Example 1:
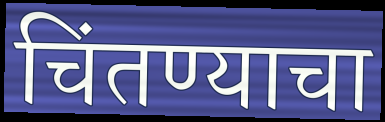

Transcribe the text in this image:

चिंतण्याचा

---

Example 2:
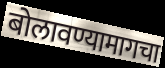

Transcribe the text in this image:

बोलावण्यामागचा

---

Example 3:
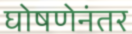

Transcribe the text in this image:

घोषणेनंतर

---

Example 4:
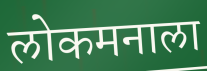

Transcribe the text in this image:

लोकमनाला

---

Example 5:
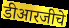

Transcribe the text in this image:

डीआरजीचे